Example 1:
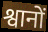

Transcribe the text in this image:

श्वानों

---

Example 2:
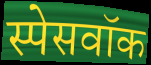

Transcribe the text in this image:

स्पेसवॉक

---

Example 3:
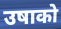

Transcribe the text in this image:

उषाको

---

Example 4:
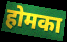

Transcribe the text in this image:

होमका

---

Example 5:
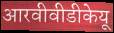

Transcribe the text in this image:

आरवीवीडीकेयू